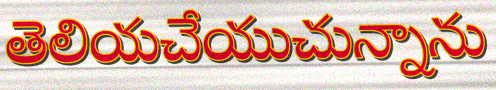
తెలియచేయుచున్నాను